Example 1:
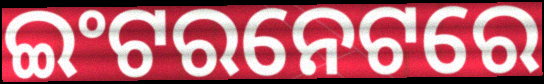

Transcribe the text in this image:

ଇଂଟରନେଟରେ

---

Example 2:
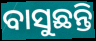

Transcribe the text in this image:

ବାସୁଛନ୍ତି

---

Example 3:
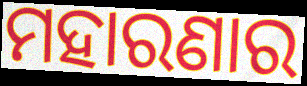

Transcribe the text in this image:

ମହାରଣାର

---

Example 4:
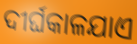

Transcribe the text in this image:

ଦୀର୍ଘକାଳଯାଏ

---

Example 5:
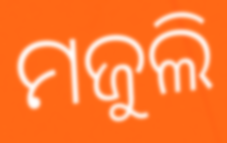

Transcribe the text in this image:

ମଜୁଲି